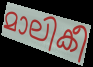
മാലികീ